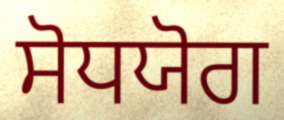
ਸੋਧਯੋਗ